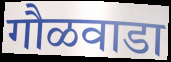
गौळवाडा